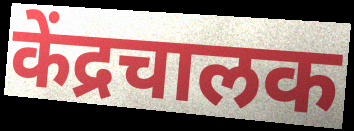
केंद्रचालक